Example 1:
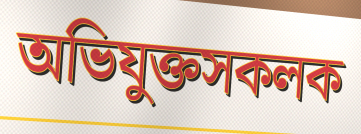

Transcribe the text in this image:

অভিযুক্তসকলক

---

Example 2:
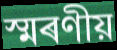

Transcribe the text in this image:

স্মৰণীয়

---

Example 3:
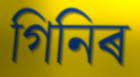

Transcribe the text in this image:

গিনিৰ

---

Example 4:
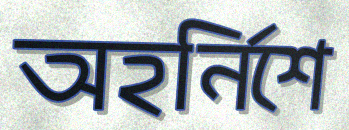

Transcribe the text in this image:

অহৰ্নিশে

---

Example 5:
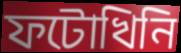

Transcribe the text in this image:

ফটোখিনি